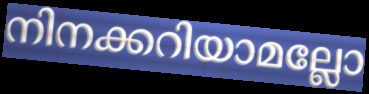
നിനക്കറിയാമല്ലോ